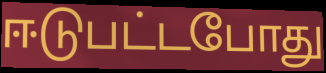
ஈடுபட்டபோது